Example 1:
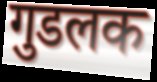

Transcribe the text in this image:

गुडलक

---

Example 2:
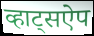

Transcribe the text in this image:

व्हाट्सऐप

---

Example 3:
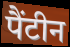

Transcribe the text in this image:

पैंटीन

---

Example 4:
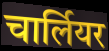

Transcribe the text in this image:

चार्लियर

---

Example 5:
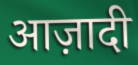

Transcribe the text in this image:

आज़ादी